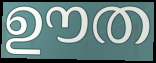
ഊത